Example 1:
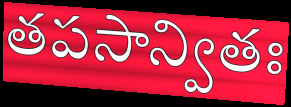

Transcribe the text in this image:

తపసాన్వితః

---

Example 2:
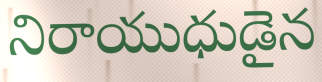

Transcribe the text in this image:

నిరాయుధుడైన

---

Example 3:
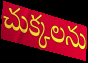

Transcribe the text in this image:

చుక్కలను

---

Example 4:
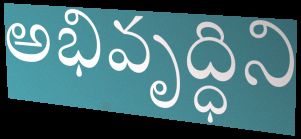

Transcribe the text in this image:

అభివృద్ధిని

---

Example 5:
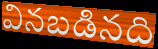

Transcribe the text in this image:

వినబడినది